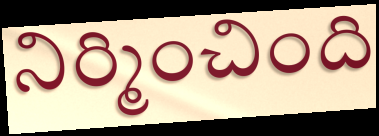
నిర్మించింది